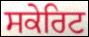
ਸਕੇਰਿਟ